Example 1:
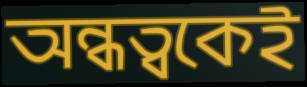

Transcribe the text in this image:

অন্ধত্বকেই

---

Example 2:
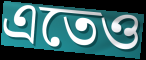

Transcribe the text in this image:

এতেও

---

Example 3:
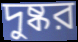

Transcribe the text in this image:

দুষ্কর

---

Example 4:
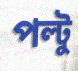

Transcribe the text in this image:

পল্টু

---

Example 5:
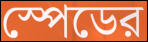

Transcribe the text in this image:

স্পেডের